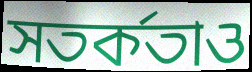
সতর্কতাও